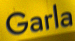
Garla